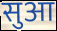
सुआ